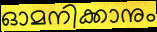
ഓമനിക്കാനും